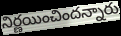
నిర్ణయించిందన్నారు